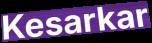
Kesarkar